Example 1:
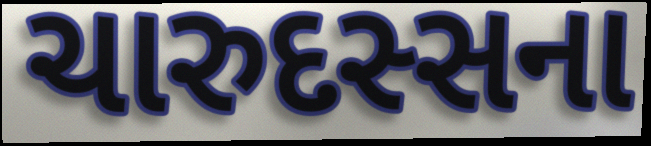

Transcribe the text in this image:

ચારુદસ્સના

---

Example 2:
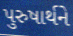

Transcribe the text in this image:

પુરુષાર્થને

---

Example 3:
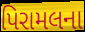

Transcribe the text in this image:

પિરામલના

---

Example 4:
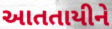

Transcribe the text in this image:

આતતાયીને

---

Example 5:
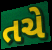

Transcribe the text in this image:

તચે